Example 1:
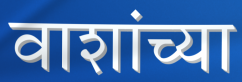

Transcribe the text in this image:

वाशांच्या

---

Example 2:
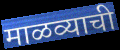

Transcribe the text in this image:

माळव्याची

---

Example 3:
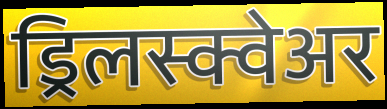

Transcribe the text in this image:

ड्रिलस्क्वेअर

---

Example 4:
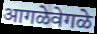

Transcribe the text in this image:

आगळेवेगळे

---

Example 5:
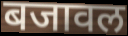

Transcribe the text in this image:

बजावल